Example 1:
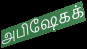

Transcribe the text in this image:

அபிஷேகக்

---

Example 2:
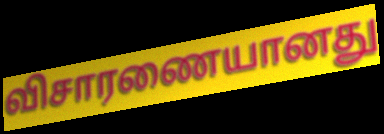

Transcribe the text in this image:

விசாரணையானது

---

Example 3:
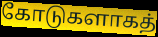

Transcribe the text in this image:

கோடுகளாகத்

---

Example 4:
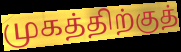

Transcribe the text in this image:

முகத்திற்குத்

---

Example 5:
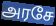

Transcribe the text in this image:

அரசே